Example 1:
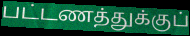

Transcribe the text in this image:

பட்டணத்துக்குப்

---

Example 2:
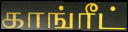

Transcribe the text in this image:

காங்ரீட்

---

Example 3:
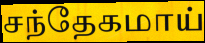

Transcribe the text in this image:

சந்தேகமாய்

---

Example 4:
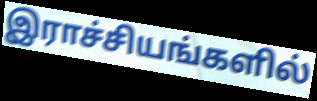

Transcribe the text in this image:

இராச்சியங்களில்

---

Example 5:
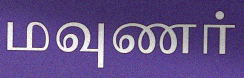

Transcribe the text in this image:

மவுணர்